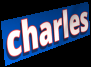
charles